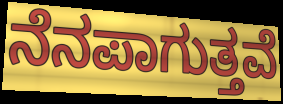
ನೆನಪಾಗುತ್ತವೆ